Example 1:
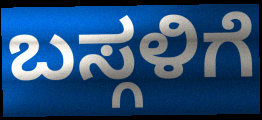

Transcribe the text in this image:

ಬಸ್ಗಳಿಗೆ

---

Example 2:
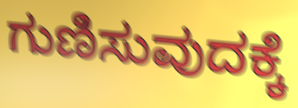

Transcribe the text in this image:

ಗುಣಿಸುವುದಕ್ಕೆ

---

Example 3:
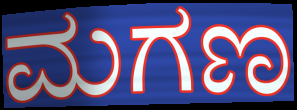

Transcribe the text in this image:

ಮಗಣ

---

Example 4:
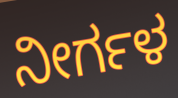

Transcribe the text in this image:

ನೀರ್ಗಳ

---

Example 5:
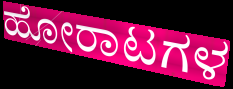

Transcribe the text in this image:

ಹೋರಾಟಗಳ